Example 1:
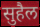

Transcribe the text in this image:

सुहैल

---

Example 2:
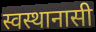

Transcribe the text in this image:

स्वस्थानासी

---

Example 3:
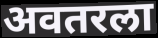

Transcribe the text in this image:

अवतरला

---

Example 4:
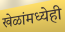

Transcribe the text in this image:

खेळांमध्येही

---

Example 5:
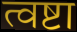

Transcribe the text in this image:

त्वष्टा